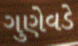
ગુણેવડે